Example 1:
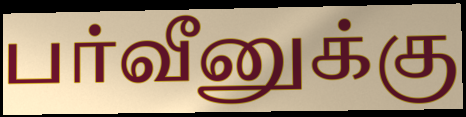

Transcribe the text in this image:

பர்வீனுக்கு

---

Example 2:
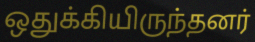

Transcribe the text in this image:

ஒதுக்கியிருந்தனர்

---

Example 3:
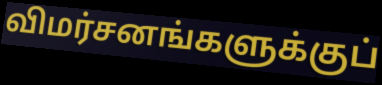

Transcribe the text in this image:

விமர்சனங்களுக்குப்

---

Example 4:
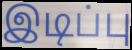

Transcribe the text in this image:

இடிப்பு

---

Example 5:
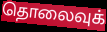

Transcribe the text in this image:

தொலைவுக்